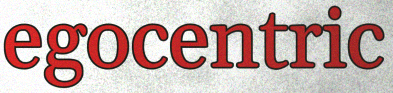
egocentric